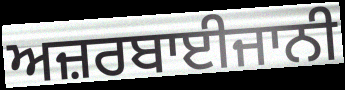
ਅਜ਼ਰਬਾਈਜਾਨੀ